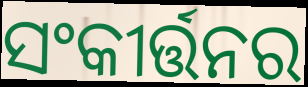
ସଂକୀର୍ତ୍ତନର